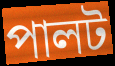
পালট